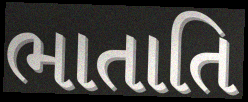
ભાતાતિ